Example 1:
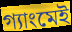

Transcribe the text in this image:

গ্যাংমেই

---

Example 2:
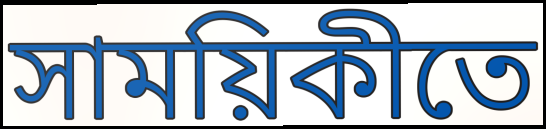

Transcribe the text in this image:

সাময়িকীতে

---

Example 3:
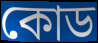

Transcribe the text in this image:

কোড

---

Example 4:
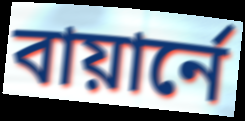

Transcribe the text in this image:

বায়ার্নে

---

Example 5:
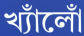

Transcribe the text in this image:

খ্যাঁলোঁ